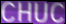
CHUC